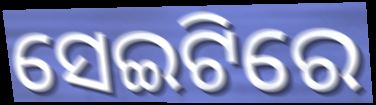
ସେଇଟିରେ